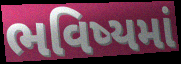
ભવિષ્યમાં